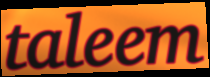
taleem